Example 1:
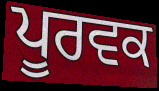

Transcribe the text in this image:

ਪੂਰਵਕ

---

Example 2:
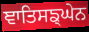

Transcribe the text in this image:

ਞਾਤਿਸਙ੍ਘੇਨ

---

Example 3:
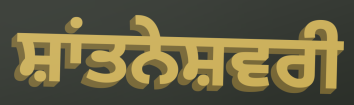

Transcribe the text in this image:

ਸ਼ਾਂਤਨੇਸ਼ਵਰੀ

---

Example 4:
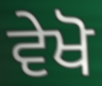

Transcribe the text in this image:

ਵੇਖੋ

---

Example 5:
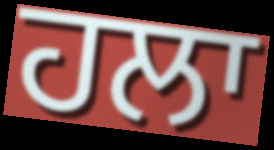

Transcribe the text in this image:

ਹਲਾ